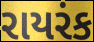
રાયરંક